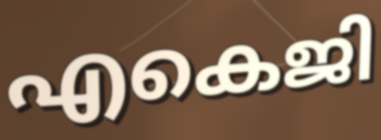
എകെജി